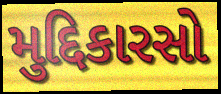
મુદ્દિકારસો